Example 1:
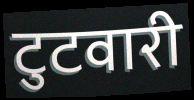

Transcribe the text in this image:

टुटवारी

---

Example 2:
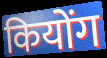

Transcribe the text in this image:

कियोंग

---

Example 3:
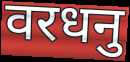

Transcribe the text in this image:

वरधनु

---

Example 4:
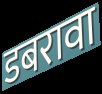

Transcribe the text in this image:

डबरावा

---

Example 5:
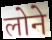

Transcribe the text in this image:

लोने